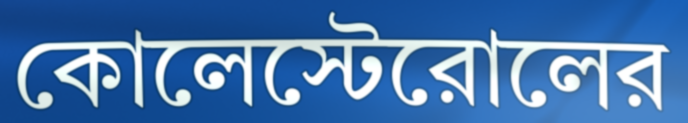
কোলেস্টেরোলের